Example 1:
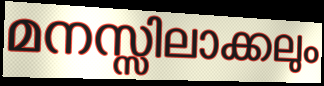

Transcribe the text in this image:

മനസ്സിലാക്കലും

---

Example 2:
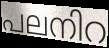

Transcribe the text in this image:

പലനിറ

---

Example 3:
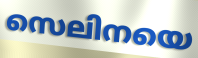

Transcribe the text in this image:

സെലിനയെ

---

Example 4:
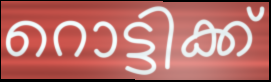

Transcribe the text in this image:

റൊട്ടിക്ക്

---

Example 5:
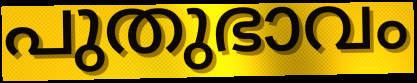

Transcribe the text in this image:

പുതുഭാവം